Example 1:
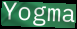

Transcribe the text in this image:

Yogma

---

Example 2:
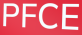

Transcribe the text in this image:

PFCE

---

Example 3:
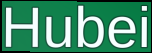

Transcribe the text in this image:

Hubei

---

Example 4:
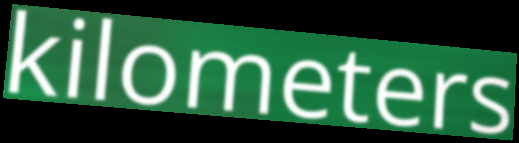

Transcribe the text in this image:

kilometers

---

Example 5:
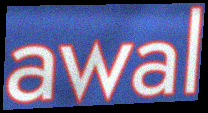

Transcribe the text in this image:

awal